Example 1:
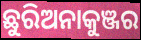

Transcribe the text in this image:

ଛୁରିଅନାକୁଞ୍ଜର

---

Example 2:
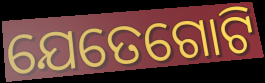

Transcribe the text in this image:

ଯେତେଗୋଟି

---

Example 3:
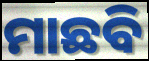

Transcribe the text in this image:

ମାଛବି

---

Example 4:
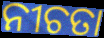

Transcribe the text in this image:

ନୀଚତା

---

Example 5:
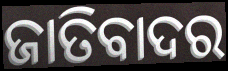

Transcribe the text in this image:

ଜାତିବାଦର